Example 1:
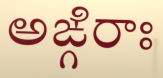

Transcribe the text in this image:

అఙ్గిరాః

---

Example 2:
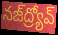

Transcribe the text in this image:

నజ్‌ద్ర్యోవ్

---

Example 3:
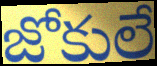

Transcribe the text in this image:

జోకులే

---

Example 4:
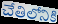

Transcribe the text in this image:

చేతిలోనికి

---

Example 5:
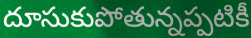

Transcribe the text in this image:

దూసుకుపోతున్నప్పటికీ